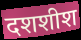
दशशीश